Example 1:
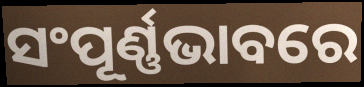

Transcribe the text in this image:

ସଂପୂର୍ଣ୍ଣଭାବରେ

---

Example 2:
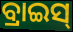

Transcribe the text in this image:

ବ୍ରାଇସ୍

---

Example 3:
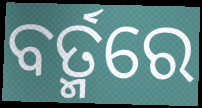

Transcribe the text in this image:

ବର୍ତ୍ମରେ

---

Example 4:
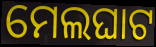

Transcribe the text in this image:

ମେଲଘାଟ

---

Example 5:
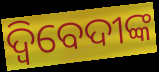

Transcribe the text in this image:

ଦ୍ବିବେଦୀଙ୍କ